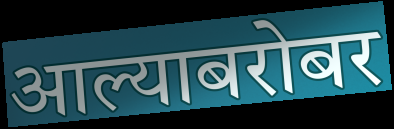
आल्याबरोबर